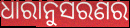
ଧାରାନୁସରଣର